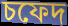
চফেদ